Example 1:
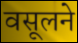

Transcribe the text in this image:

वसूलने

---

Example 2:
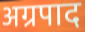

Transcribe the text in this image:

अग्रपाद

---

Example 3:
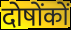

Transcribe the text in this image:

दोषोंकों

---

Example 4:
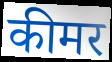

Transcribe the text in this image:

कीमर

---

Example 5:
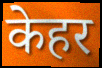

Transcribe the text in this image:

केहर